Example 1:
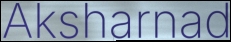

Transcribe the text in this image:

Aksharnad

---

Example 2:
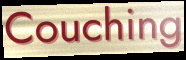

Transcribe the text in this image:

Couching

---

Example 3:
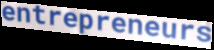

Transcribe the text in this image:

entrepreneurs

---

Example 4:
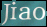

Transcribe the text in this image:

Jiao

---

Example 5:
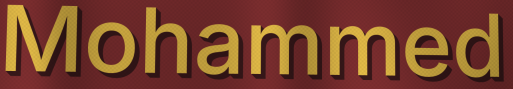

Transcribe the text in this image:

Mohammed